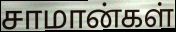
சாமான்கள்